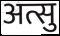
अत्सु